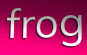
frog